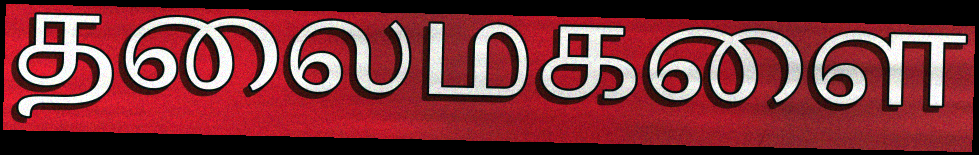
தலைமகளை